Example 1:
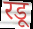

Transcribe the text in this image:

रडू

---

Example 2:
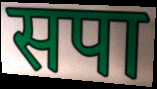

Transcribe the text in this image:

सपा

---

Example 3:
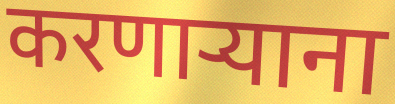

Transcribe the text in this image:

करणाऱ्याना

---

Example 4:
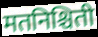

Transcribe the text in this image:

मतनिश्चिती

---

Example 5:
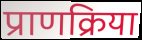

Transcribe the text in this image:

प्राणक्रिया